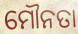
ମୌନତା